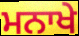
ਮਨਾਖੇ